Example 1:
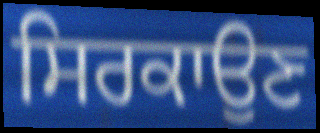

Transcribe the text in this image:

ਸਿਰਕਾਉਣ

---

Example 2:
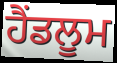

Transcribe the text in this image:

ਹੈਂਡਲੂਮ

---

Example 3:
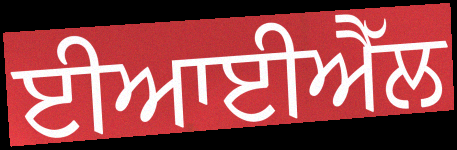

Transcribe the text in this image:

ਈਆਈਐੱਲ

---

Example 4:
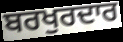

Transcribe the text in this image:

ਬਰਖੁਰਦਾਰ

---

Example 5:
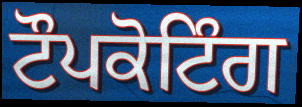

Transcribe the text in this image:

ਟੌਪਕੋਟਿੰਗ